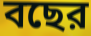
বছের